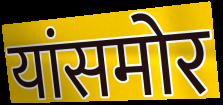
यांसमोर